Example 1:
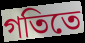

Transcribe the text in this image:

গতিতে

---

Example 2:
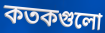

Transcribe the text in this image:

কতকগুলো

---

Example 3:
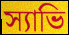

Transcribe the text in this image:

স্যাভি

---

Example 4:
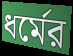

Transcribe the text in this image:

ধর্মের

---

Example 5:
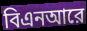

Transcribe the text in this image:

বিএনআরে